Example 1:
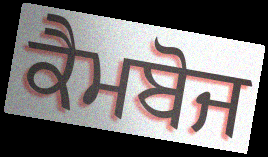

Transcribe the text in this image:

ਕੈਮਬੋਜ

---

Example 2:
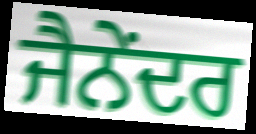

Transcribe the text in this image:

ਜੈਨੇਂਦਰ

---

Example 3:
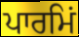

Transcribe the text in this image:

ਪਾਰਮਿਂ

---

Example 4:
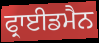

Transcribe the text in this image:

ਫ੍ਰਾਈਡਮੈਨ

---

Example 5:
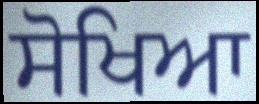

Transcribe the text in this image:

ਸੋਖਿਆ